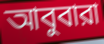
আবুবারা